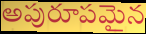
అపురూపమైన